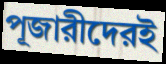
পূজারীদেরই